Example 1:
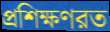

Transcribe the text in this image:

প্রশিক্ষণরত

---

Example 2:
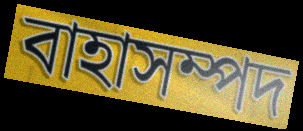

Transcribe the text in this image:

বাহাসম্পদ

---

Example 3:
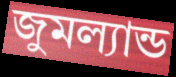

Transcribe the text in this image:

জুমল্যান্ড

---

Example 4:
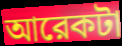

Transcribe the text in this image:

আরেকটা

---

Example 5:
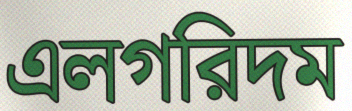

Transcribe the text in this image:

এলগরিদম